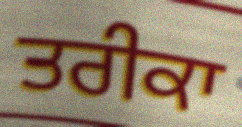
ਤਰੀਕਾ